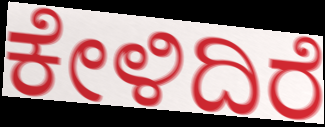
ಕೇಳಿದಿರೆ